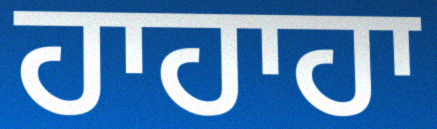
ਹਾਹਾਹਾ